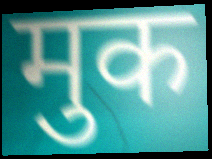
मुक